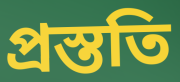
প্রস্ততি